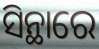
ସିନ୍ଥାରେ